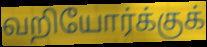
வறியோர்க்குக்